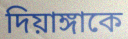
দিয়াঙ্গাকে